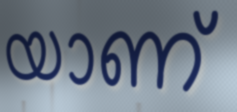
യാണ്